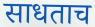
साधताच